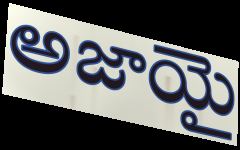
అజాయై